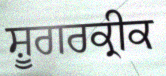
ਸ਼ੂਗਰਕ੍ਰੀਕ